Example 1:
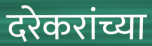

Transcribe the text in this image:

दरेकरांच्या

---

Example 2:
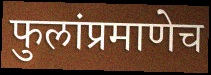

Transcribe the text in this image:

फुलांप्रमाणेच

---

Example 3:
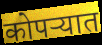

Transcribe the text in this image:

कोपऱ्यात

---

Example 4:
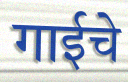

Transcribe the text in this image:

गाईचे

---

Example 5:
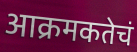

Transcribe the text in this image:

आक्रमकतेचं